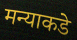
मन्याकडे